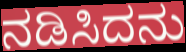
ನಡಿಸಿದನು